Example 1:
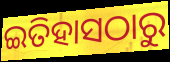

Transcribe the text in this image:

ଇତିହାସଠାରୁ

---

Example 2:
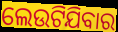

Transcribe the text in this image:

ଲେଉଟିଯିବାର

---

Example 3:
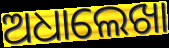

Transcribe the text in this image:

ଅଧାଲେଖା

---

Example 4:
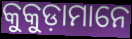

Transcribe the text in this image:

କୁକୁଡ଼ାମାନେ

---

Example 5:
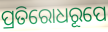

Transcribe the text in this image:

ପ୍ରତିରୋଧରୂପେ